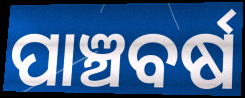
ପାଞ୍ଚବର୍ଷ